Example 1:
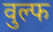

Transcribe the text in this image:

वुल्फ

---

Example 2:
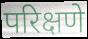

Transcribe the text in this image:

परिक्षणे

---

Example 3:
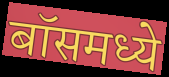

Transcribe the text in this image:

बॉसमध्ये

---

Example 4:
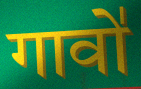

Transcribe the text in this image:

गावो॑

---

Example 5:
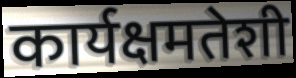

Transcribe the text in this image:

कार्यक्षमतेशी